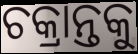
ଚକ୍ରାନ୍ତକୁ